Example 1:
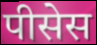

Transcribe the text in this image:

पीसेस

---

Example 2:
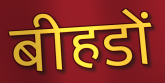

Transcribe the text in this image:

बीहडों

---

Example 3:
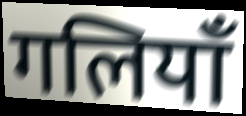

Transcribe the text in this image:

गलियाँ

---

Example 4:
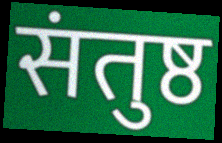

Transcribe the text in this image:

संतुष्ठ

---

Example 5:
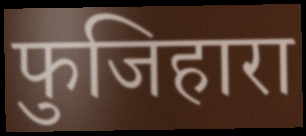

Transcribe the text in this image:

फुजिहारा